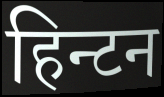
हिन्टन